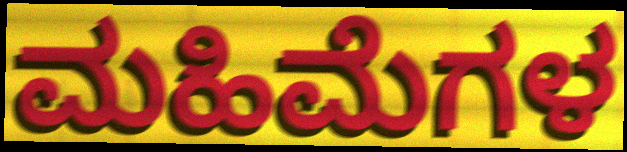
ಮಹಿಮೆಗಳ